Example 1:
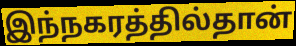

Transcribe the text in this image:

இந்நகரத்தில்தான்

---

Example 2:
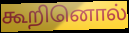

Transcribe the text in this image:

கூறினொல்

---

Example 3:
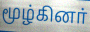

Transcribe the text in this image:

மூழ்கினர்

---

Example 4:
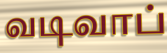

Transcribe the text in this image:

வடிவாப்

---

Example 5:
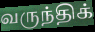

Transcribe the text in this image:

வருந்திக்